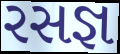
રસજ્ઞ